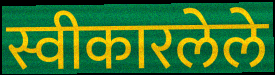
स्वीकारलेले